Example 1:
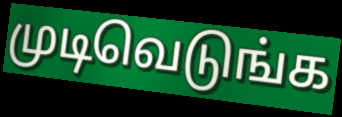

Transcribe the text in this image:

முடிவெடுங்க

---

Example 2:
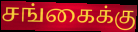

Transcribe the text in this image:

சங்கைக்கு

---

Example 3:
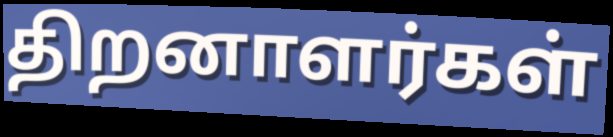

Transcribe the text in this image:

திறனாளர்கள்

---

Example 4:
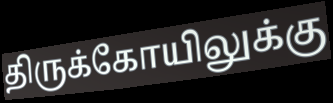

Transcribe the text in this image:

திருக்கோயிலுக்கு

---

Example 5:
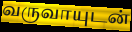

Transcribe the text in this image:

வருவாயுடன்